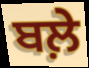
ਬਲ਼ੇ